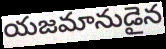
యజమానుడైన